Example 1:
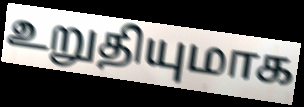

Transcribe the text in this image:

உறுதியுமாக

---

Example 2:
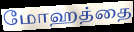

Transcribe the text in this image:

மோஹத்தை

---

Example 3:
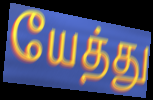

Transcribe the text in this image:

யேத்து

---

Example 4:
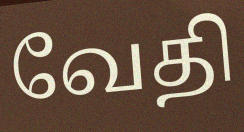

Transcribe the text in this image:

வேதி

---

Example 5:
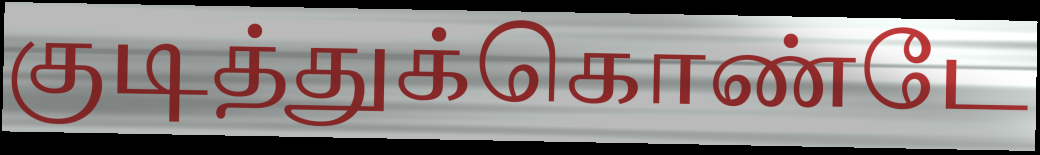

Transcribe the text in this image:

குடித்துக்கொண்டே